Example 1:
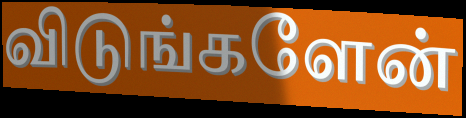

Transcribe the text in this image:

விடுங்களேன்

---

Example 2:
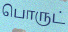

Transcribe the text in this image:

பொருட்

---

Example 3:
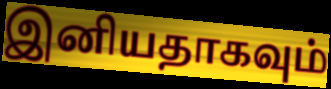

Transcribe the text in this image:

இனியதாகவும்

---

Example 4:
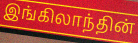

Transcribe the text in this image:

இங்கிலாந்தின்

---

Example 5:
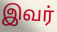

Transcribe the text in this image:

இவர்